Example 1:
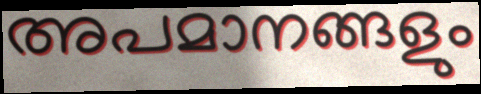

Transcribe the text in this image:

അപമാനങ്ങളും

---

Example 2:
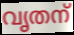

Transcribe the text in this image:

വൃതന്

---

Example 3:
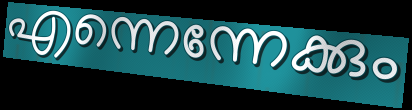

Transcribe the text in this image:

എന്നെന്നേക്കും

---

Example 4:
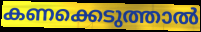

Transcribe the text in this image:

കണക്കെടുത്താൽ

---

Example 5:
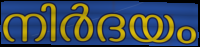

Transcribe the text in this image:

നിർദയം